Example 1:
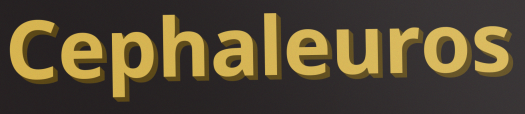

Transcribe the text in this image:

Cephaleuros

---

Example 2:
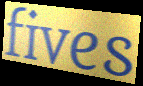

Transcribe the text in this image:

fives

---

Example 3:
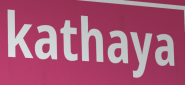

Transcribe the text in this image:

kathaya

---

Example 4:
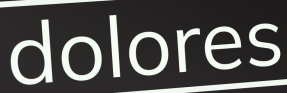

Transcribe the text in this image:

dolores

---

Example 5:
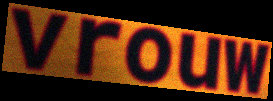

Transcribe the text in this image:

vrouw